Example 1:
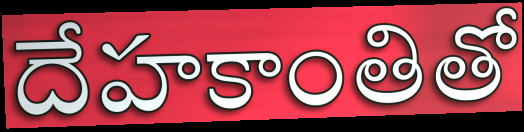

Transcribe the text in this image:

దేహకాంతితో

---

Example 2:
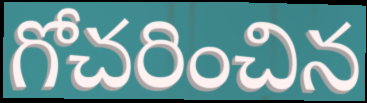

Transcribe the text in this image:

గోచరించిన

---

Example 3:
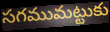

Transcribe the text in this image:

సగముమట్టుకు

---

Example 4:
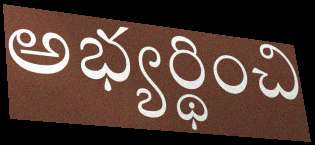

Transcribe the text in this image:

అభ్యర్థించి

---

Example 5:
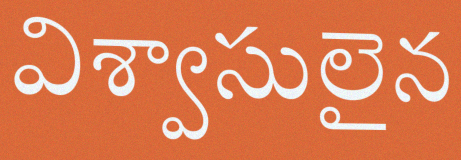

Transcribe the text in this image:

విశ్వాసులైన